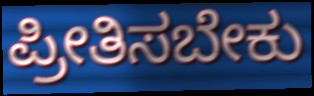
ಪ್ರೀತಿಸಬೇಕು